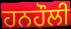
ਹਨਹੌਲੀ